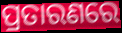
ପ୍ରତାରଣରେ